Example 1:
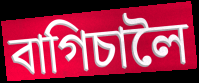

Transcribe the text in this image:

বাগিচালৈ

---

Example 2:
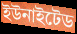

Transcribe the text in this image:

ইউনাইটেড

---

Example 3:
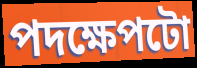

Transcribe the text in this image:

পদক্ষেপটো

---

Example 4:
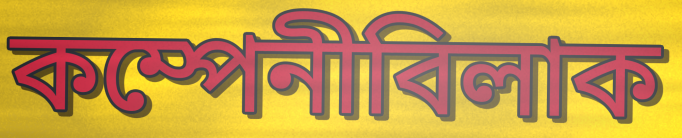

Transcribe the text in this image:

কম্পেনীবিলাক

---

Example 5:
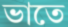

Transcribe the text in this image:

ভাতে